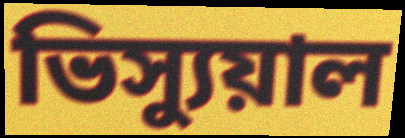
ভিস্যুয়াল